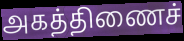
அகத்திணைச்